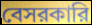
বেসরকারি